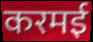
करमई